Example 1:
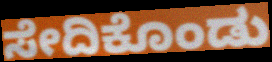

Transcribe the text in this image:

ಸೇದಿಕೊಂಡು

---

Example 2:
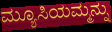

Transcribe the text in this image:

ಮ್ಯೂಸಿಯಮ್ಮನ್ನು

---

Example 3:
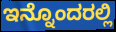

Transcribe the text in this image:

ಇನ್ನೊಂದರಲ್ಲಿ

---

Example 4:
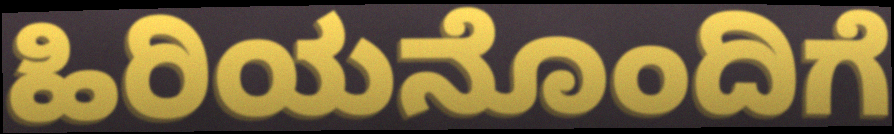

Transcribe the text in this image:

ಹಿರಿಯನೊಂದಿಗೆ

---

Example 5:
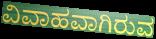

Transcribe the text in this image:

ವಿವಾಹವಾಗಿರುವ